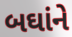
બઘાંને